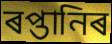
ৰপ্তানিৰ